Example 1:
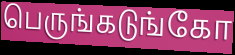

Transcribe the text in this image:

பெருங்கடுங்கோ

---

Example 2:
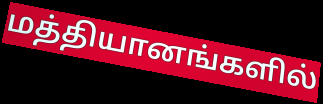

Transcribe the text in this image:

மத்தியானங்களில்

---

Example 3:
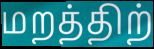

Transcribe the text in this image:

மறத்திற்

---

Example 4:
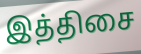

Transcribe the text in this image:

இத்திசை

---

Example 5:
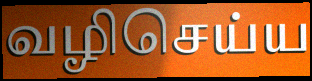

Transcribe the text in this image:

வழிசெய்ய